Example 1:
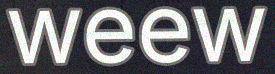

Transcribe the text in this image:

weew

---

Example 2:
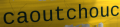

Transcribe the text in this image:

caoutchouc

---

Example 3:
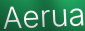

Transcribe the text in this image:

Aerua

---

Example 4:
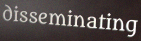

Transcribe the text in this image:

disseminating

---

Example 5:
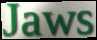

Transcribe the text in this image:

Jaws